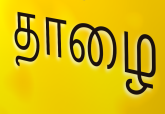
தாழை